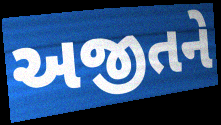
અજીતને